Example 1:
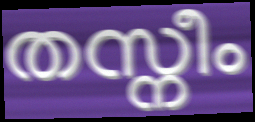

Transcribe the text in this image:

തസ്നീം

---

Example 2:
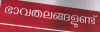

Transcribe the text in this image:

ഭാവതലങ്ങളുണ്ട്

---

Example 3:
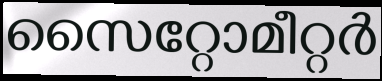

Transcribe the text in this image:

സൈറ്റോമീറ്റർ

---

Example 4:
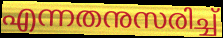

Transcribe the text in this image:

എന്നതനുസരിച്ച്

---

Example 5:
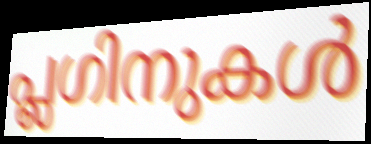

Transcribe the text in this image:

പ്ലഗിനുകൾ